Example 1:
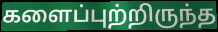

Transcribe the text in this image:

களைப்புற்றிருந்த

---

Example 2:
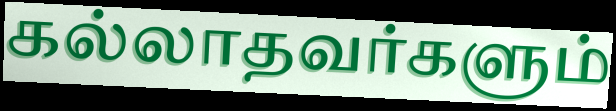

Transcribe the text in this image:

கல்லாதவர்களும்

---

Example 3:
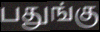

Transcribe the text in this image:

பதுங்கு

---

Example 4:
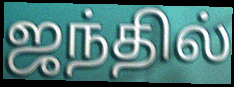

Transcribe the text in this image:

ஜந்தில்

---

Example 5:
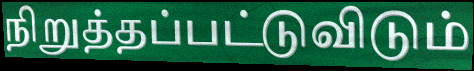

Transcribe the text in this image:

நிறுத்தப்பட்டுவிடும்